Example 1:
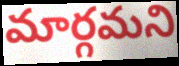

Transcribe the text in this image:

మార్గమని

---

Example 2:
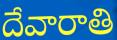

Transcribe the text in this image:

దేవారాతి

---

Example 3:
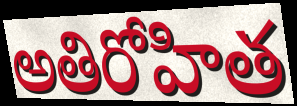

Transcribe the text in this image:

అతిరోహిత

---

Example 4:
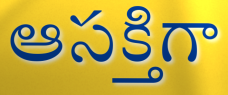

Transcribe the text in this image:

ఆసక్తిగా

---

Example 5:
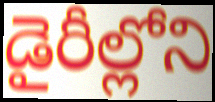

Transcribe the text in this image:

డైరీల్లోని